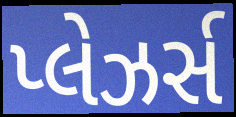
પ્લેઝર્સ